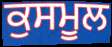
ਕੁਸਮੂਲ